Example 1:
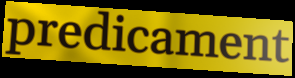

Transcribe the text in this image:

predicament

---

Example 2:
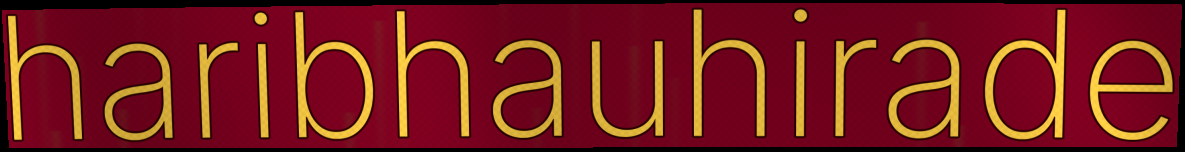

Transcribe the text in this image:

haribhauhirade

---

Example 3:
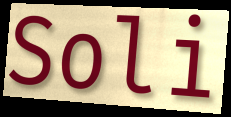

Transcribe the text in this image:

Soli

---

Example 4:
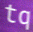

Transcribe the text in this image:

tq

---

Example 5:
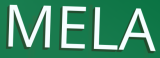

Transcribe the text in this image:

MELA